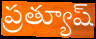
ప్రత్యూష్